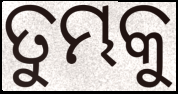
ତୁମ୍ଭକୁ